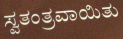
ಸ್ವತಂತ್ರವಾಯಿತು